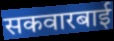
सकवारबाई